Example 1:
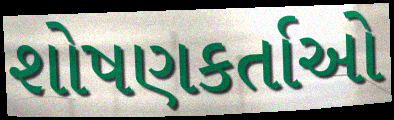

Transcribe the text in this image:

શોષણકર્તાઓ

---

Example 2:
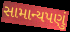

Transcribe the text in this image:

સામાન્યપણું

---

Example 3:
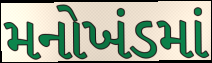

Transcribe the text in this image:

મનોખંડમાં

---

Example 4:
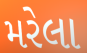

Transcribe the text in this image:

મરેલા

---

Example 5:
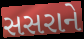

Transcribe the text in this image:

સસરાને